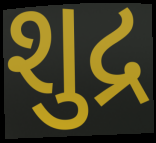
શુદ્ર